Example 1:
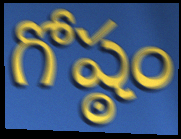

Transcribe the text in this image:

గోష్ఠం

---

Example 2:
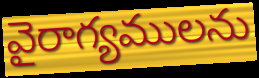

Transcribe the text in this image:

వైరాగ్యములను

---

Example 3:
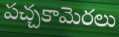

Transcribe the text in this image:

పచ్చకామెరలు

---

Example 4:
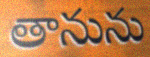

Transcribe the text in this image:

తానును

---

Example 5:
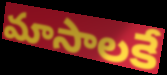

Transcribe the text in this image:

మాసాలకే